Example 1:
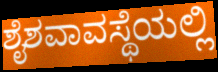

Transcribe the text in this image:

ಶೈಶವಾವಸ್ಥೆಯಲ್ಲಿ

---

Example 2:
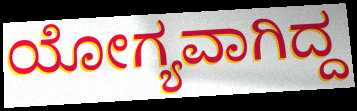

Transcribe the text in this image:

ಯೋಗ್ಯವಾಗಿದ್ದ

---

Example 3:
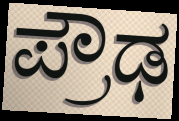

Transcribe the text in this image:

ಪ್ರೌಢ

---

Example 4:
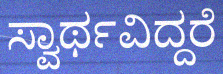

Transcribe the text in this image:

ಸ್ವಾರ್ಥವಿದ್ದರೆ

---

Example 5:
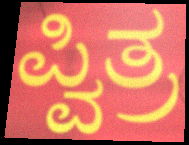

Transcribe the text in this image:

ಪ್ವಿತ್ರ